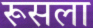
रूसला